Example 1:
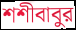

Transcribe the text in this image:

শশীবাবুর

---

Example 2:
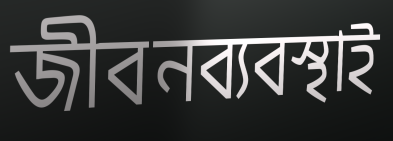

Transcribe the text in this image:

জীবনব্যবস্থাই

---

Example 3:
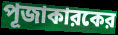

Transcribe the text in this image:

পূজাকারকের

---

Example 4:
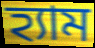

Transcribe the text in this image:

হ্যাম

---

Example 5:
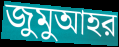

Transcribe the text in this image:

জুমুআহর